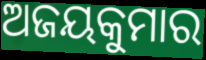
ଅଜୟକୁମାର